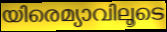
യിരെമ്യാവിലൂടെ